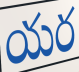
యర